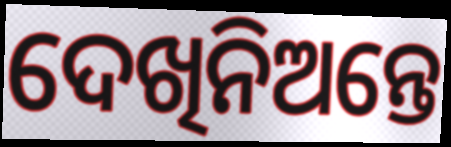
ଦେଖିନିଅନ୍ତେ